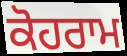
ਕੋਹਰਾਮ